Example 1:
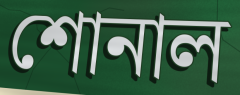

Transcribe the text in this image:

শোনাল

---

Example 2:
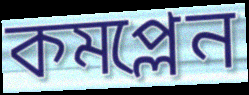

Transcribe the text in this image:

কমপ্লেন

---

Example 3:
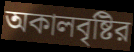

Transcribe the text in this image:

অকালবৃষ্টির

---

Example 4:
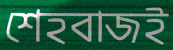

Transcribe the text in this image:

শেহবাজই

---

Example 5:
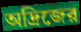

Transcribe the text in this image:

অদ্রিজের